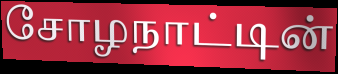
சோழநாட்டின்